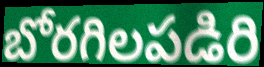
బోరగిలపడిరి